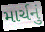
માર્ચનું